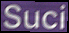
Suci